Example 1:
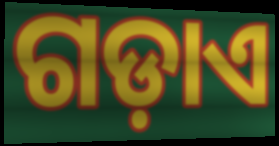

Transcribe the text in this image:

ଗଡ଼ାଏ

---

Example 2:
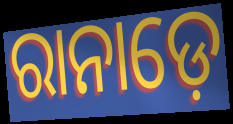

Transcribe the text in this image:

ରାନାଡ଼େ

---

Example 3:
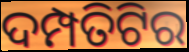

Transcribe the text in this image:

ଦମ୍ପତିଟିର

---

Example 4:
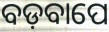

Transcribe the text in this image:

ବଡ଼ବାପେ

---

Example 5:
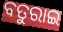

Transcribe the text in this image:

ବତୁରାଇ